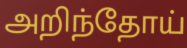
அறிந்தோய்